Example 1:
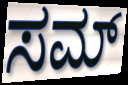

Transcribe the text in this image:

ಸಮ್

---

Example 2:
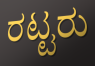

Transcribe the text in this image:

ರಟ್ಟರು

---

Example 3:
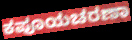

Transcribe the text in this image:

ಕಪೂಯಚರಣಾ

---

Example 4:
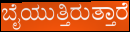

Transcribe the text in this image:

ಬೈಯುತ್ತಿರುತ್ತಾರೆ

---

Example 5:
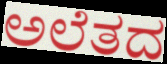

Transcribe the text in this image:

ಅಲೆತದ